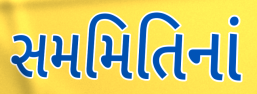
સમમિતિનાં